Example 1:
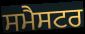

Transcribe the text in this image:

ਸਮੈਸਟਰ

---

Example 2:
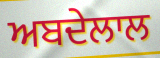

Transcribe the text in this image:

ਅਬਦੇਲਾਲ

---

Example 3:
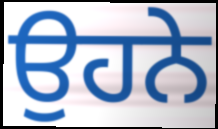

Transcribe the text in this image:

ਉਹਨੇ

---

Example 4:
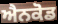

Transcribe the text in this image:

ਐਨਕੋਡ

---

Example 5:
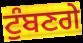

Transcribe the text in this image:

ਟੁੰਬਣਗੇ